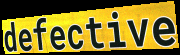
defective